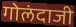
गोलंदाजी